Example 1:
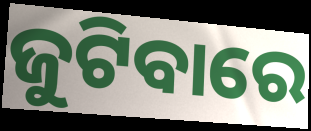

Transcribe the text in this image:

ଜୁଟିବାରେ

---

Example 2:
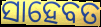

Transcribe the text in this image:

ସାହେବତ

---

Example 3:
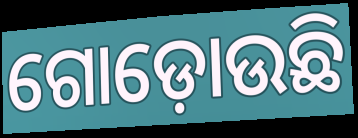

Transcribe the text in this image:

ଗୋଡ଼ୋଉଛି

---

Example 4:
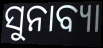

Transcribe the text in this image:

ସୁନାବ୍ୟା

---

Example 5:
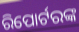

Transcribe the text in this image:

ରିପୋର୍ଟରଙ୍କ